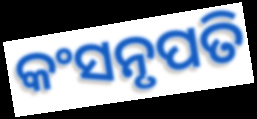
କଂସନୃପତି